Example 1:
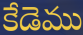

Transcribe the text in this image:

కేడెము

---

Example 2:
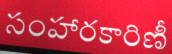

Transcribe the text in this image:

సంహారకారిణీ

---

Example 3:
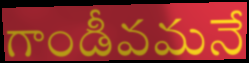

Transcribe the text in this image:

గాండీవమనే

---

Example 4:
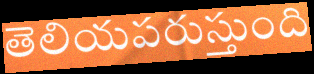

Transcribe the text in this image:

తెలియపరుస్తుంది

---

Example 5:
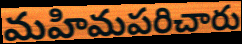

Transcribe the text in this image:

మహిమపరిచారు